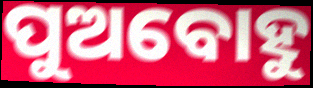
ପୁଅବୋହୁ